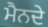
ਮੈਨਦੇ